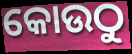
କୋଉଠୁ